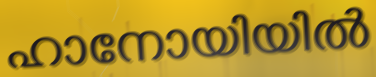
ഹാനോയിയിൽ